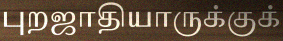
புறஜாதியாருக்குக்